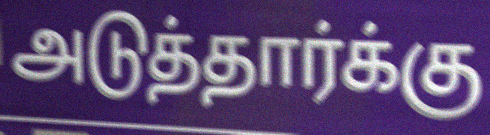
அடுத்தார்க்கு